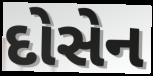
દોસેન